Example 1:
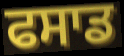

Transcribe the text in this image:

ਫਸਾਡ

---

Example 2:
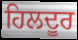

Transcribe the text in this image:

ਹਿਲਦੂਰ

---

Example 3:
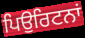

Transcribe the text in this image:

ਪਿਉਰਿਟਨਾਂ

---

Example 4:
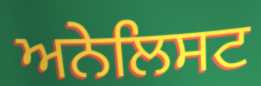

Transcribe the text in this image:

ਅਨੇਲਿਸਟ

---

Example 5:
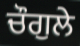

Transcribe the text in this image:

ਚੌਗੁਲੇ